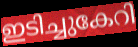
ഇടിച്ചുകേറി